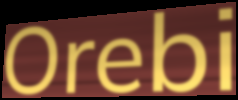
Orebi